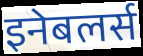
इनेबलर्स